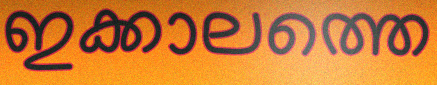
ഇക്കാലത്തെ